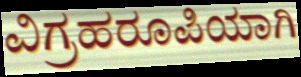
ವಿಗ್ರಹರೂಪಿಯಾಗಿ